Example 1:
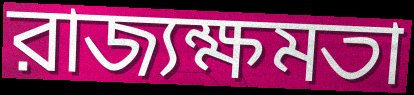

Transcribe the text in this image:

রাজ্যক্ষমতা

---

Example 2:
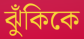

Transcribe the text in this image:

ঝুঁকিকে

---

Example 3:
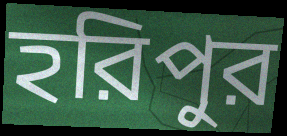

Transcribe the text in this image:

হরিপুর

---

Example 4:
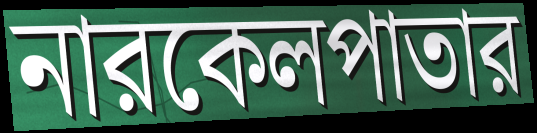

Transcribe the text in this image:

নারকেলপাতার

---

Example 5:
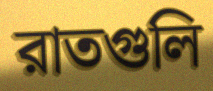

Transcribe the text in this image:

রাতগুলি